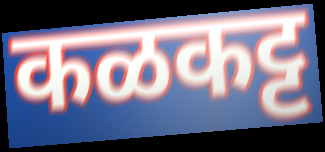
कळकट्ट